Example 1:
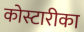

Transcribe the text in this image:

कोस्टारीका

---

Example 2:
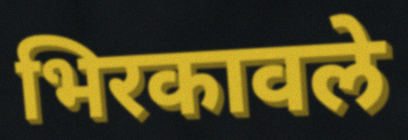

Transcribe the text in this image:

भिरकावले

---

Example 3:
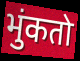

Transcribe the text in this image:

भुंकतो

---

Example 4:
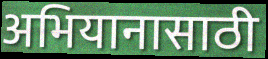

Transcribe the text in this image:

अभियानासाठी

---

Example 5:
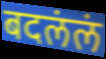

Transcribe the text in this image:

बदलंलं